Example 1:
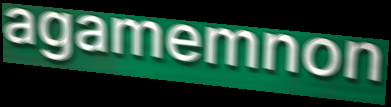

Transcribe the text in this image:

agamemnon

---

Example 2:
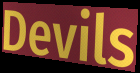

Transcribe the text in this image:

Devils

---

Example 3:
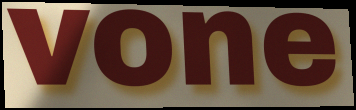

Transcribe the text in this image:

vone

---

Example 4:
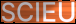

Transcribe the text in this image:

SCIEU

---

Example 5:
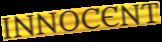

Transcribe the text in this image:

INNOCENT